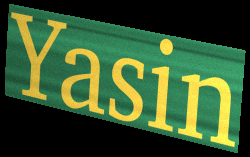
Yasin